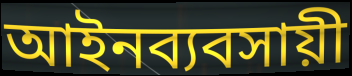
আইনব্যবসায়ী